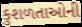
કુશળતાઓની